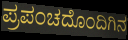
ಪ್ರಪಂಚದೊಂದಿಗಿನ